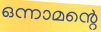
ഒന്നാമന്റെ